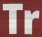
Tr